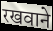
रखवाने